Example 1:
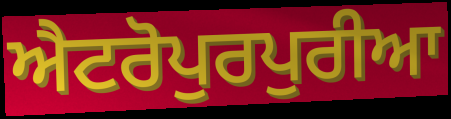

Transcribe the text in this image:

ਐਟਰੋਪੁਰਪੁਰੀਆ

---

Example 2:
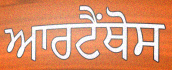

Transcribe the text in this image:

ਆਰਟੈਂਥੋਸ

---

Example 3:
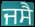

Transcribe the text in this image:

ਜਸੈ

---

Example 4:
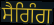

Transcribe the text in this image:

ਸੈਗਿੰਗ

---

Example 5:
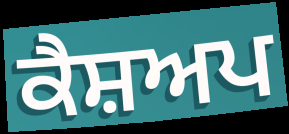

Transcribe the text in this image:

ਕੈਸ਼ਅਪ